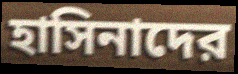
হাসিনাদের